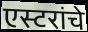
एस्टरांचे